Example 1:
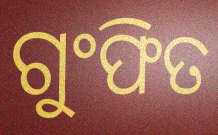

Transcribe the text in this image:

ଗୁଂଫିତ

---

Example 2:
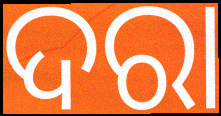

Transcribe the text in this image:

ଦରା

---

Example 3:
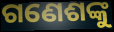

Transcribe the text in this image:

ଗଣେଶଙ୍କୁ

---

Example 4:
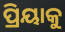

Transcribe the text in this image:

ପ୍ରିୟାକୁ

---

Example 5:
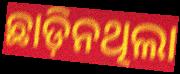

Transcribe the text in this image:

ଛାଡ଼ିନଥିଲା